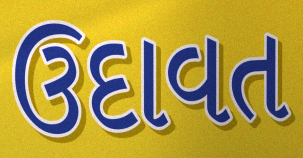
ઉદાવત